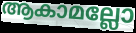
ആകാമല്ലോ